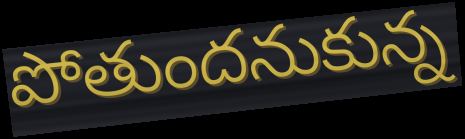
పోతుందనుకున్న